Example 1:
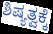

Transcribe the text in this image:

ಶಿಷ್ಯತ್ವಕ್ಕೆ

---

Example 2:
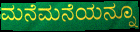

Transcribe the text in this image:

ಮನೆಮನೆಯನ್ನೂ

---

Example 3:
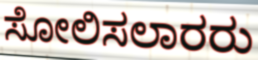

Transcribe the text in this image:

ಸೋಲಿಸಲಾರರು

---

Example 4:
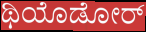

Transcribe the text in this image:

ಥಿಯೊಡೋರ್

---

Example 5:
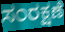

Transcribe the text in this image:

ಸಂರಕ್ಷಣೆ